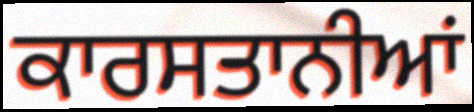
ਕਾਰਸਤਾਨੀਆਂ